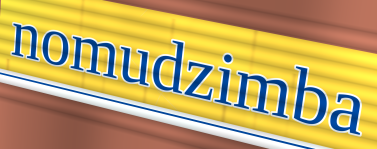
nomudzimba